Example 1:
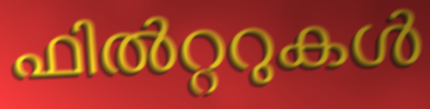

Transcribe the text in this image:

ഫിൽറ്ററുകൾ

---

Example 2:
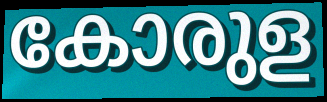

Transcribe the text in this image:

കോരുള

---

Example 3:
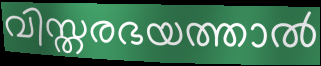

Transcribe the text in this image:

വിസ്തരഭയത്താൽ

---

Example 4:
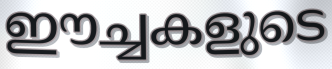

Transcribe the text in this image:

ഈച്ചകളുടെ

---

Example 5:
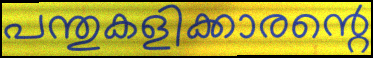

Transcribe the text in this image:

പന്തുകളിക്കാരന്റെ